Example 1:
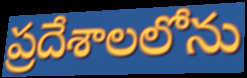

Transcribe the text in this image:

ప్రదేశాలలోను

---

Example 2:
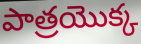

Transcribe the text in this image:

పాత్రయొక్క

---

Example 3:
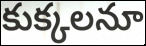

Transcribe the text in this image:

కుక్కలనూ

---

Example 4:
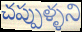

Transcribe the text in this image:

చప్పుళ్ళని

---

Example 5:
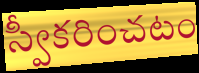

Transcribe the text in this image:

స్వీకరించటం